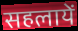
सहलायें